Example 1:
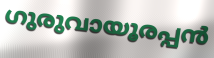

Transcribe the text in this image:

ഗുരുവായൂരപ്പൻ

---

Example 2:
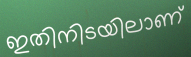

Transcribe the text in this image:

ഇതിനിടയിലാണ്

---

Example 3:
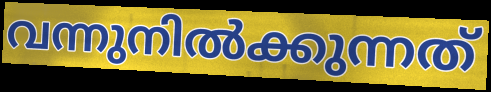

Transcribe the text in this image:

വന്നുനിൽക്കുന്നത്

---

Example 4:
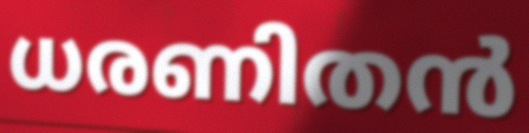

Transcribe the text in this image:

ധരണിതൻ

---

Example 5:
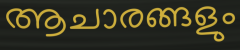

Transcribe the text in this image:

ആചാരങ്ങളും